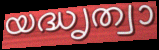
യദ്ധൃത്വാ